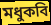
মধুকবি